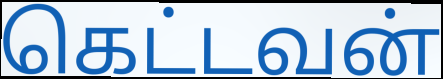
கெட்டவன்